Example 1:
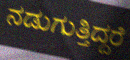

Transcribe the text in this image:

ನಡುಗುತ್ತಿದ್ದರೆ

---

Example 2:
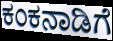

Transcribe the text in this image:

ಕಂಕನಾಡಿಗೆ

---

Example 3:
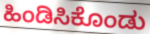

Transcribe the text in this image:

ಹಿಂಡಿಸಿಕೊಂಡು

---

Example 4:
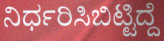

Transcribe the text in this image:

ನಿರ್ಧರಿಸಿಬಿಟ್ಟಿದ್ದೆ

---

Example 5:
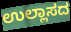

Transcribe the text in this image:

ಉಲ್ಲಾಸದ